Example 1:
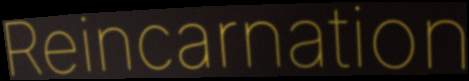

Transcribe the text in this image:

Reincarnation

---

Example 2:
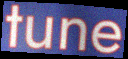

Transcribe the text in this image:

tune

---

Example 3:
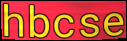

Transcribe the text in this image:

hbcse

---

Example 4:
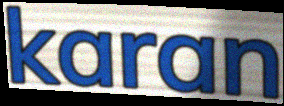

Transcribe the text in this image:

karan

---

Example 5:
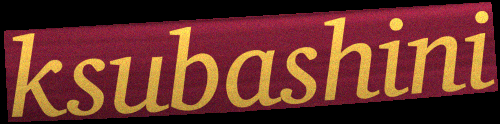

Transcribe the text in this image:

ksubashini